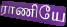
ராணியே